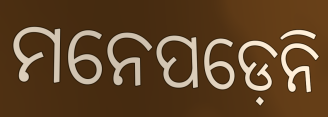
ମନେପଡ଼େନି